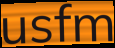
usfm